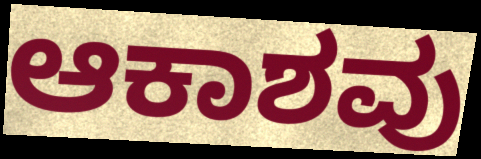
ಆಕಾಶವು